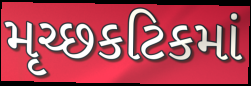
મૃચ્છકટિકમાં